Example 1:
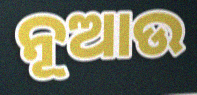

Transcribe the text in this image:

ନୂଆଉ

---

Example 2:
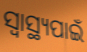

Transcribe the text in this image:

ସ୍ଵାସ୍ଥ୍ୟପାଇଁ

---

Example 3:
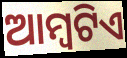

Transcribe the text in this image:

ଆମ୍ବଟିଏ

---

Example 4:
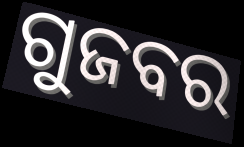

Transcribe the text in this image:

ଗୁଜବର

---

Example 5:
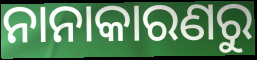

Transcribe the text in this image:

ନାନାକାରଣରୁ